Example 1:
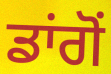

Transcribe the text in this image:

ਡਾਂਗੋਂ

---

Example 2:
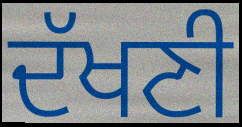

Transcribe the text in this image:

ਦੱਖਣੀ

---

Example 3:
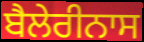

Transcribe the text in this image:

ਬੈਲੇਰੀਨਾਸ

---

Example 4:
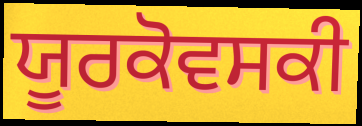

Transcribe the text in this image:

ਯੂਰਕੋਵਸਕੀ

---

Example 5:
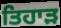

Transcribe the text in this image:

ਤਿਹਾੜ